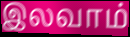
இலவாம்